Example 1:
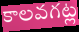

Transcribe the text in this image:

కాలవగట్ల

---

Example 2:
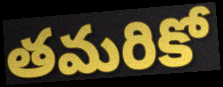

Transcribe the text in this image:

తమరికో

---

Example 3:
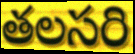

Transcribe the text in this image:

తలసరి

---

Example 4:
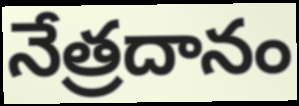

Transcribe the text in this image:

నేత్రదానం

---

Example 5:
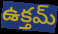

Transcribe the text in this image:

ఉక్తమ్